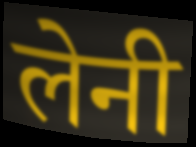
लेनी